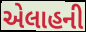
એલાહની